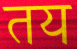
तय